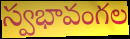
స్వభావంగల